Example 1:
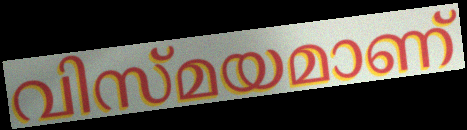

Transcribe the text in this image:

വിസ്മയമാണ്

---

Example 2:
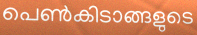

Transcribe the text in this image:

പെൺകിടാങ്ങളുടെ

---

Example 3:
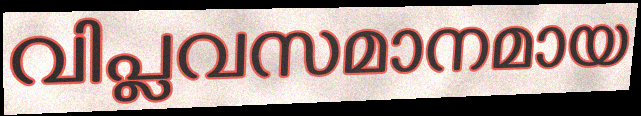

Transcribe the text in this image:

വിപ്ലവസമാനമായ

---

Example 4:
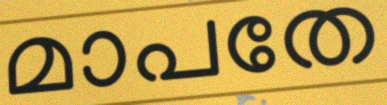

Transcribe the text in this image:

മാപതേ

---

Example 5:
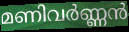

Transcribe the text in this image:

മണിവർണ്ണൻ